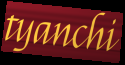
tyanchi